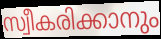
സ്വീകരിക്കാനും